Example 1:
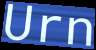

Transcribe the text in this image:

Urn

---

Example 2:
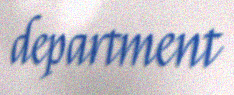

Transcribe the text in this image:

department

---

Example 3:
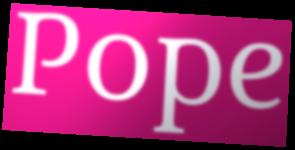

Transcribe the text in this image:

Pope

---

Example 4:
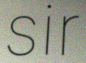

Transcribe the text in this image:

sir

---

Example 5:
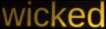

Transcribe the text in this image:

wicked